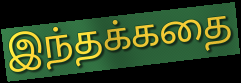
இந்தக்கதை